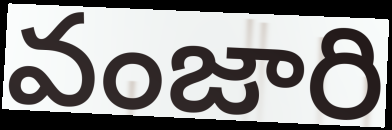
వంజారి